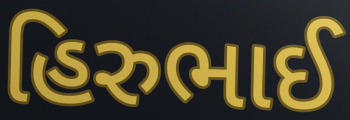
હિરુભાઈ